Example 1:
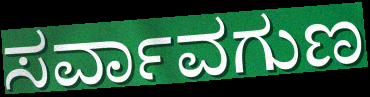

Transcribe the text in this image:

ಸರ್ವಾವಗುಣ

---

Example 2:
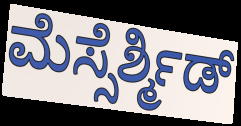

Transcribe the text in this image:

ಮೆಸ್ಸೆರ್ಶ್ಮಿಡ್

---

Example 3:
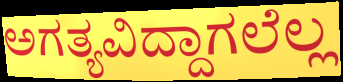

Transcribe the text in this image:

ಅಗತ್ಯವಿದ್ದಾಗಲೆಲ್ಲ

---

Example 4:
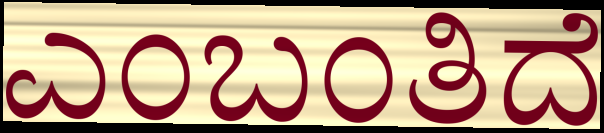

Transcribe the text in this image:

ಎಂಬಂತಿದೆ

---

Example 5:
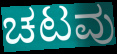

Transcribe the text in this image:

ಚಟವು